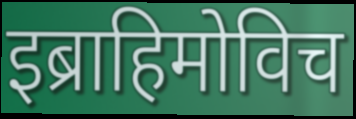
इब्राहिमोविच